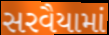
સરવૈયામાં